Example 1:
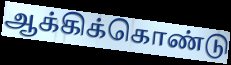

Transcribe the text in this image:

ஆக்கிக்கொண்டு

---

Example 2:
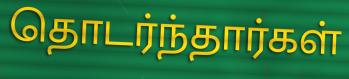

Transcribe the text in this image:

தொடர்ந்தார்கள்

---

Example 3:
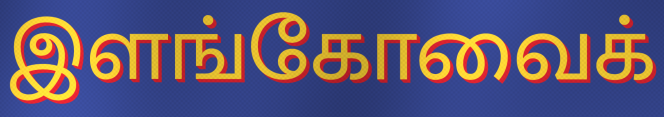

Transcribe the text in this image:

இளங்கோவைக்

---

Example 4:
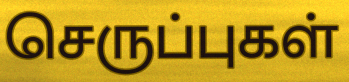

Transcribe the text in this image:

செருப்புகள்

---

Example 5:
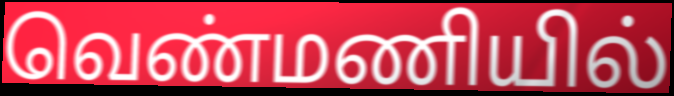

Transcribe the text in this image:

வெண்மணியில்